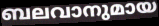
ബലവാനുമായ